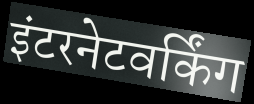
इंटरनेटवर्किंग